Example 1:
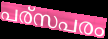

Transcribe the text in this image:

പര്സപരം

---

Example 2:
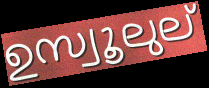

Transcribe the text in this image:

ഉസ്വൂലുല്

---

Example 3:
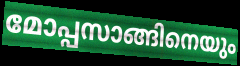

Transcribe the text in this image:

മോപ്പസാങ്ങിനെയും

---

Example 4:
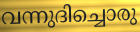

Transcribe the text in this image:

വന്നുദിച്ചൊരു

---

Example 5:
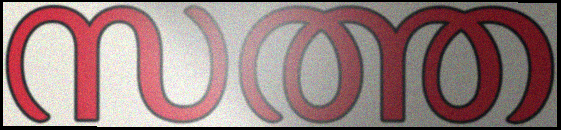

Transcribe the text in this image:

സത്ത